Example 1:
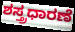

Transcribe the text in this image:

ಶಸ್ತ್ರಧಾರಣೆ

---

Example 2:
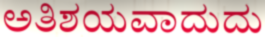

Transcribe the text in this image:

ಅತಿಶಯವಾದುದು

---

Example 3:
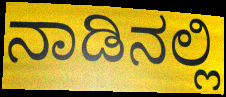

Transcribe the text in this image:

ನಾಡಿನಲ್ಲಿ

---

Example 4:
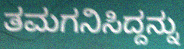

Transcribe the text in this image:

ತಮಗನಿಸಿದ್ದನ್ನು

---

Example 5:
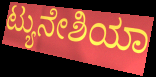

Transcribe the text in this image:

ಟ್ಯುನೇಶಿಯಾ